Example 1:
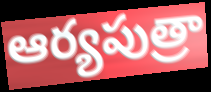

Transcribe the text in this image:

ఆర్యపుత్రా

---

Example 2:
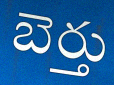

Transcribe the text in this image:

బెర్తు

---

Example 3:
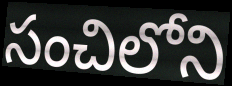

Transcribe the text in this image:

సంచిలోని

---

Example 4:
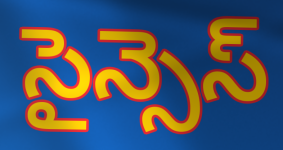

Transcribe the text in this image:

సైన్సెస్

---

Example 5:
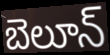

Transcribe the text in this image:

బెలూన్